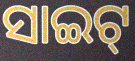
ସାଇଟ୍